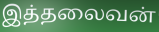
இத்தலைவன்